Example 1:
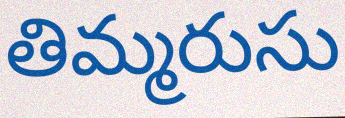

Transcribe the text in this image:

తిమ్మరుసు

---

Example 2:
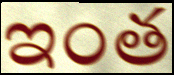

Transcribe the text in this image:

ఇంత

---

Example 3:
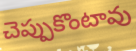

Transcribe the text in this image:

చెప్పుకొంటావు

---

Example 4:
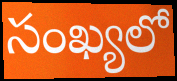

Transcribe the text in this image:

సంఖ్యలో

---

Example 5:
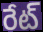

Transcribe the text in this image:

రేట్